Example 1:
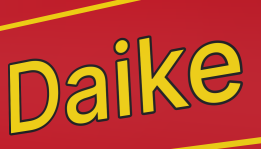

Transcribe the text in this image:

Daike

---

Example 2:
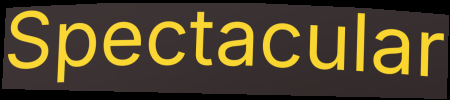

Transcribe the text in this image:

Spectacular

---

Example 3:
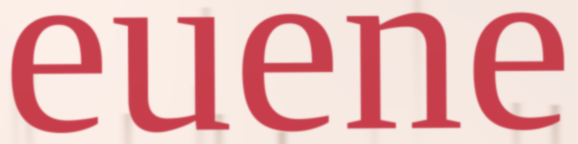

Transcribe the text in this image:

euene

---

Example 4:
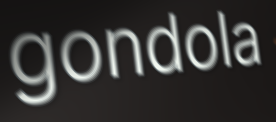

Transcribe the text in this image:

gondola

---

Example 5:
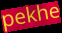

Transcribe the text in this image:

pekhe